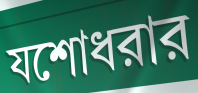
যশোধরার